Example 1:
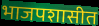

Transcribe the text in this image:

भाजपशासीत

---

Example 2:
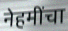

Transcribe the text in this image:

नेहमींचा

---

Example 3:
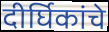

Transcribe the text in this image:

दीर्घिकांचे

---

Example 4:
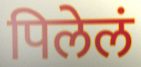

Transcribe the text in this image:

पिलेलं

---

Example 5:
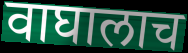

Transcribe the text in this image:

वाघालाच